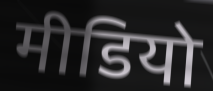
मीडियो